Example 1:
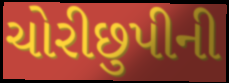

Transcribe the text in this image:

ચોરીછુપીની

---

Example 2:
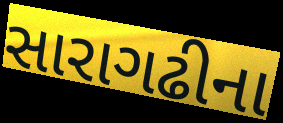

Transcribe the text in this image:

સારાગઢીના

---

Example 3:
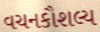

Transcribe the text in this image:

વચનકૌશલ્ય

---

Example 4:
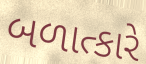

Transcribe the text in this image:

બળાત્કારે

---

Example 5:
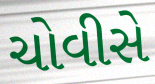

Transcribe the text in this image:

ચોવીસે